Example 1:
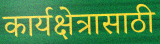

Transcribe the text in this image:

कार्यक्षेत्रासाठी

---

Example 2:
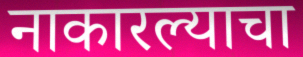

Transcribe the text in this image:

नाकारल्याचा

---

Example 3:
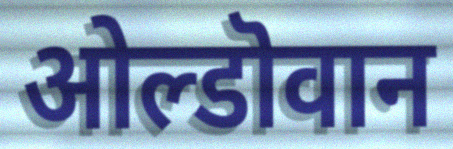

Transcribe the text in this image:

ओल्डॊवान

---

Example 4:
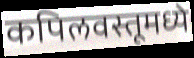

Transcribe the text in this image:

कपिलवस्तूमध्ये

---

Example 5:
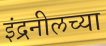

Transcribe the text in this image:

इंद्रनीलच्या